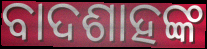
ବାଦଶାହଙ୍କ